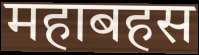
महाबहस